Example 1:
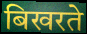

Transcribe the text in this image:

बिखरते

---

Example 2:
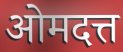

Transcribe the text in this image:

ओमदत्त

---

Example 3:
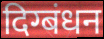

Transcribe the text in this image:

दिग्बंधन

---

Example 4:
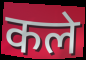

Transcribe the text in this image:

कले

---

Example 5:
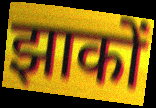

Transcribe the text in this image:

झाकों